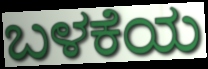
ಬಳಕೆಯ